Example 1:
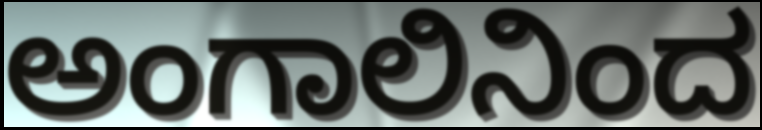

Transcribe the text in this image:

ಅಂಗಾಲಿನಿಂದ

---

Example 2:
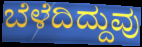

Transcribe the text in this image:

ಬೆಳೆದಿದ್ದುವು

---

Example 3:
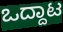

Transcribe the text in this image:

ಒದ್ದಾಟ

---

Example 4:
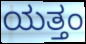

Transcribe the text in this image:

ಯತ್ತಂ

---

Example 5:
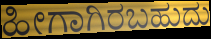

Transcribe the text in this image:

ಹೀಗಾಗಿರಬಹುದು